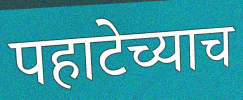
पहाटेच्याच